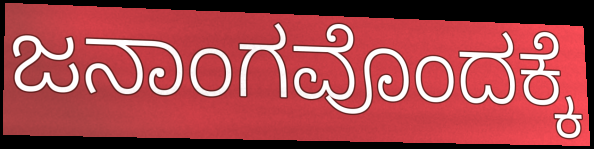
ಜನಾಂಗವೊಂದಕ್ಕೆ